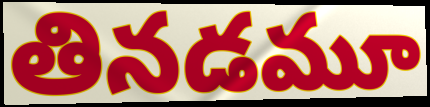
తినడమూ